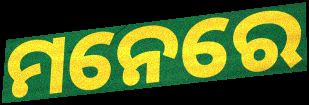
ମନେରେ